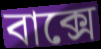
বাক্সে